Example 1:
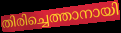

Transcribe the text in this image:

തിരിച്ചെത്താനായി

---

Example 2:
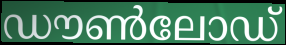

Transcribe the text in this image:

ഡൗൺലോഡ്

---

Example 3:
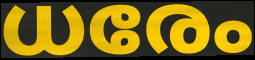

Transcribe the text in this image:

ധരേം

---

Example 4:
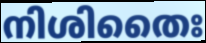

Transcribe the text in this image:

നിശിതൈഃ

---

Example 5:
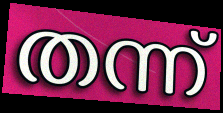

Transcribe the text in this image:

തന്ന്